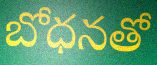
బోధనతో